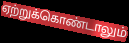
ஏற்றுக்கொண்டாலும்